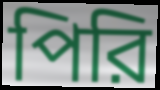
পিরি